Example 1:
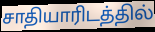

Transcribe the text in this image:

சாதியாரிடத்தில்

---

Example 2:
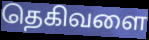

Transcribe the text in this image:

தெகிவளை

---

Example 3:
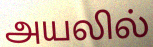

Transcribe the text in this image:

அயலில்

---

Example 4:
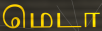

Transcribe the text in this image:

மெடா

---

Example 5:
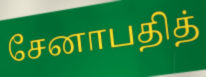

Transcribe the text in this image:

சேனாபதித்